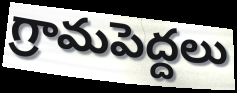
గ్రామపెద్దలు